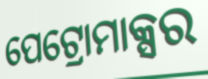
ପେଟ୍ରୋମାକ୍ସର